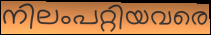
നിലംപറ്റിയവരെ